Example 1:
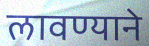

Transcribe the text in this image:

लावण्याने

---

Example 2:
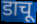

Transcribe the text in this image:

डाचू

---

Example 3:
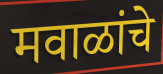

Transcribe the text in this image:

मवाळांचे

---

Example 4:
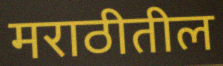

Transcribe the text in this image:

मराठीतील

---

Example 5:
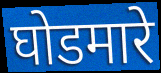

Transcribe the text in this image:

घोडमारे